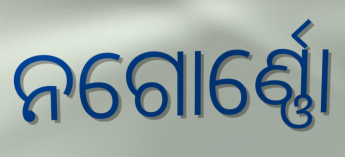
ନଗୋର୍ଣ୍ଣୋ